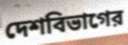
দেশবিভাগের